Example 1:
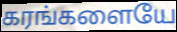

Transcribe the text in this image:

கரங்களையே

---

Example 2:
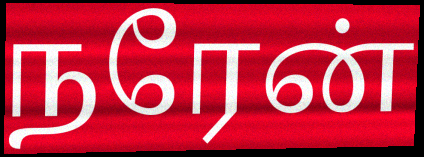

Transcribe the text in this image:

நரேன்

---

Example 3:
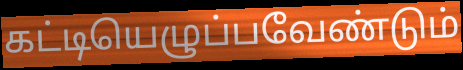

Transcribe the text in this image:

கட்டியெழுப்பவேண்டும்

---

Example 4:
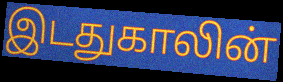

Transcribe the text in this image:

இடதுகாலின்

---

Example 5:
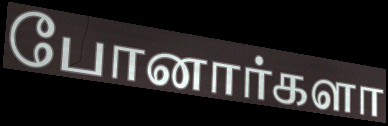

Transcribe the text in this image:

போனார்களா